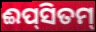
ଈପ୍‌ସିତମ୍